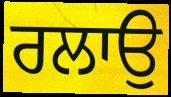
ਰਲਾਉ